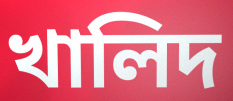
খালিদ